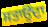
ਸਤਾਉਂਦਾ